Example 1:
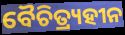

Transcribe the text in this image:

ବୈଚିତ୍ର୍ୟହୀନ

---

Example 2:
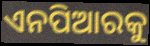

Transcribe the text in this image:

ଏନପିଆରକୁ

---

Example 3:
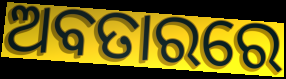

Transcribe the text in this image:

ଅବତାରରେ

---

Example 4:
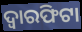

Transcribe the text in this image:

ଦ୍ୱାରଫିଟା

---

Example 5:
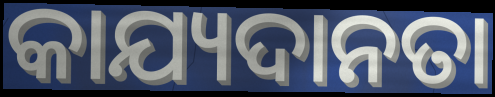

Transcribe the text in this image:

କାଯ୍ୟଦାନତା